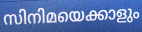
സിനിമയെക്കാളും